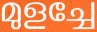
മുളച്ചേ